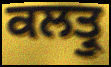
ਕਲਤ੍ਰੁ